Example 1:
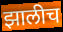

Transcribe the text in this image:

झालीच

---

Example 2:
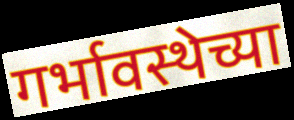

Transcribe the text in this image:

गर्भावस्थेच्या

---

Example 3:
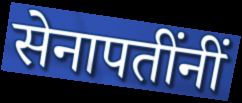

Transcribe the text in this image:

सेनापतींनीं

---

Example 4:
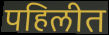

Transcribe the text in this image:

पहिलीत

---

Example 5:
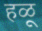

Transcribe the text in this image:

हळू